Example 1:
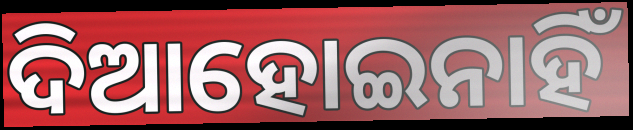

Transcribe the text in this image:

ଦିଆହୋଇନାହିଁ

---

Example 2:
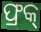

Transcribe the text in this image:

ଫ୍ରକ୍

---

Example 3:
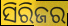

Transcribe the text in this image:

ସିରିଜର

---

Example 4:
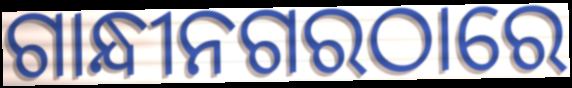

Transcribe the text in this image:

ଗାନ୍ଧୀନଗରଠାରେ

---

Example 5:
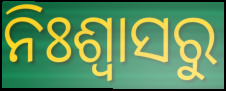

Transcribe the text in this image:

ନିଃଶ୍ଵାସରୁ